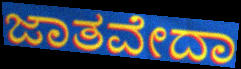
ಜಾತವೇದಾ